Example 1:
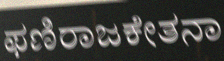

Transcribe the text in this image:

ಫಣಿರಾಜಕೇತನಾ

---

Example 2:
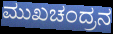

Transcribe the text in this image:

ಮುಖಚಂದ್ರನ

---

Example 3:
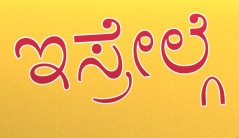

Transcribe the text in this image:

ಇಸ್ರೇಲ್ಗೆ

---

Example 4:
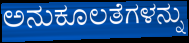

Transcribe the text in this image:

ಅನುಕೂಲತೆಗಳನ್ನು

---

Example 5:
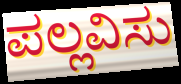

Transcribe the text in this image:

ಪಲ್ಲವಿಸು